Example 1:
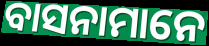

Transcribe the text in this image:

ବାସନାମାନେ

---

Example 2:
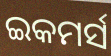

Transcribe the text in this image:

ଇକମର୍ସ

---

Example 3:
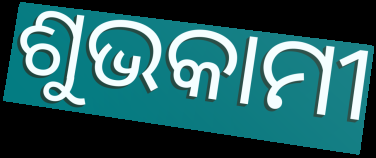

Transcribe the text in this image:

ଶୁଭକାମୀ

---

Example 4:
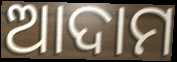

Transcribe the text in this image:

ଆଦାମ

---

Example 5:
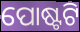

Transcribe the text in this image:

ପୋଷ୍ଟଟି